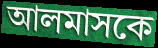
আলমাসকে